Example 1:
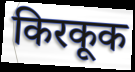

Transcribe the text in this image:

किरकूक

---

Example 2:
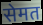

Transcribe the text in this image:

सेमत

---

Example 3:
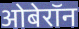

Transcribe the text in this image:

ओबेरॉन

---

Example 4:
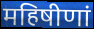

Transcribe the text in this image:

महिषीणां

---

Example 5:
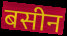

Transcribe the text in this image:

बसीन